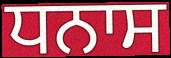
ਧਨਾਸ